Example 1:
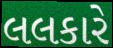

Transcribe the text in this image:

લલકારે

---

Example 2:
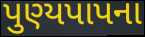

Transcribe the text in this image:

પુણ્યપાપના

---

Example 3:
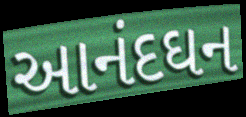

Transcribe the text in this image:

આનંદઘન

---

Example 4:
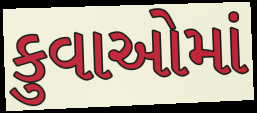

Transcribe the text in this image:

કુવાઓમાં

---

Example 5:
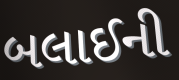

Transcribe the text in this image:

બલાઈની